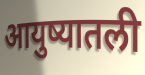
आयुष्यातली